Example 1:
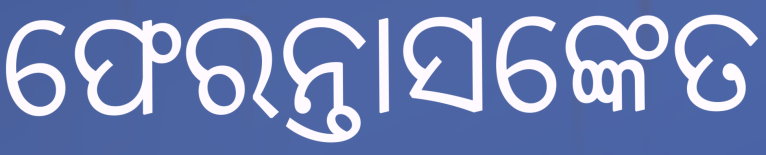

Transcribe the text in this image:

ଫେରନ୍ତାସଙ୍କେତ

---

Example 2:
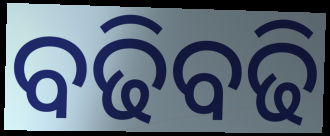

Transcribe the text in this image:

ବଢିବଢି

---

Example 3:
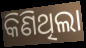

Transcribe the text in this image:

କିଣିଥିଲା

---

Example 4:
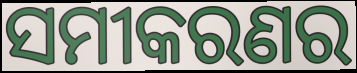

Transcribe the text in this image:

ସମୀକରଣର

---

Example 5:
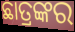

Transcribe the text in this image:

ଛାତ୍ରଙ୍କର